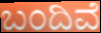
ಬಂದಿವೆ